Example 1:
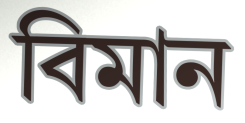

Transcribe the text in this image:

বিমান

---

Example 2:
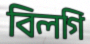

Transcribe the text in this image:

বিলগি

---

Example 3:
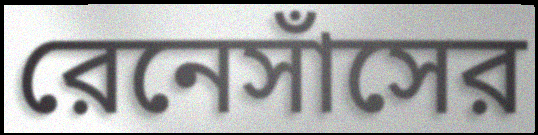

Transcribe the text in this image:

রেনেসাঁসের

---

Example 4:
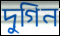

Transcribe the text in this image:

দুগিন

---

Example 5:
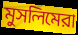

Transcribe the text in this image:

মুসলিমেরা